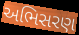
અભિસરણ